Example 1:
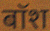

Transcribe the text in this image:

बॉश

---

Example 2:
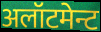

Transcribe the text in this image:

अलॉटमेन्ट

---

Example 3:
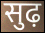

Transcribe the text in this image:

सुढ़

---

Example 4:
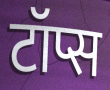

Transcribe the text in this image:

टॉप्स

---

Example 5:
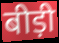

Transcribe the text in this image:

बीड़ी